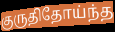
குருதிதோய்ந்த